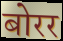
बोरर